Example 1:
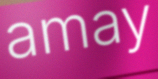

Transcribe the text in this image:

amay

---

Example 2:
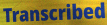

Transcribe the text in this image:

Transcribed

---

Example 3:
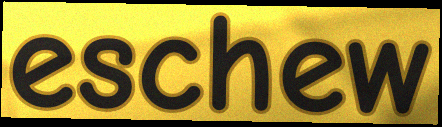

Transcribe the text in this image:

eschew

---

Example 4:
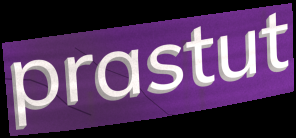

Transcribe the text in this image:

prastut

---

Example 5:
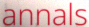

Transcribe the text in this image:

annals